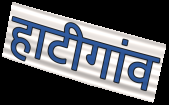
हाटीगांव